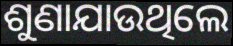
ଶୁଣାଯାଉଥିଲେ